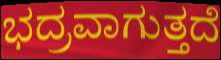
ಭದ್ರವಾಗುತ್ತದೆ